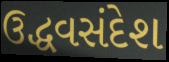
ઉદ્ધવસંદેશ